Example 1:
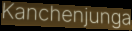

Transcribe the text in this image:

Kanchenjunga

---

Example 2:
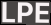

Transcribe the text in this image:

LPE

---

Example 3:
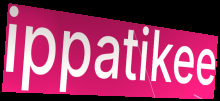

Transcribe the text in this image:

ippatikee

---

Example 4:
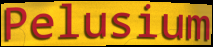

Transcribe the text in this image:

Pelusium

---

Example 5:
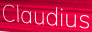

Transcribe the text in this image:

Claudius